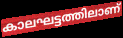
കാലഘട്ടത്തിലാണ്